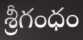
శ్రీగంధం